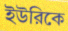
ইউরিকে